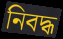
নিবদ্ধ